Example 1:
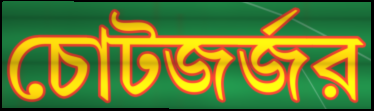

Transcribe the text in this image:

চোটজর্জর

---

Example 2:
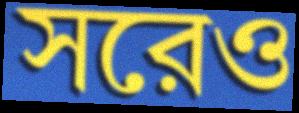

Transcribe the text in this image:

সরেও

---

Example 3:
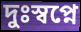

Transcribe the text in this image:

দুঃস্বপ্নে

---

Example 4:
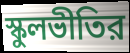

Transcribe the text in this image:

স্কুলভীতির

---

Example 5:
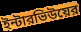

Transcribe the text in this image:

ইন্টারভিউয়ের